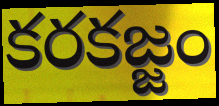
కరకజ్జం